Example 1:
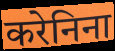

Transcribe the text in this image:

करेनिना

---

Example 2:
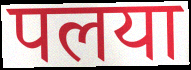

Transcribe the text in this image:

पलया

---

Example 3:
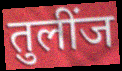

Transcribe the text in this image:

तुलींज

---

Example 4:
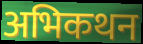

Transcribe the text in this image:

अभिकथन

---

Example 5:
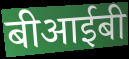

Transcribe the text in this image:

बीआईबी